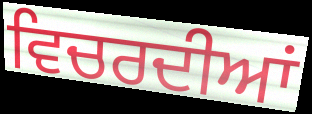
ਵਿਚਰਦੀਆਂ